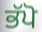
ਭੱਪੋ